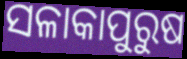
ସଳାକାପୁରୁଷ